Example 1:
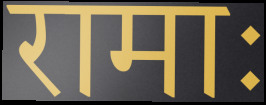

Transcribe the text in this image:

रामाः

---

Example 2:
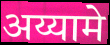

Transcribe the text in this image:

अय्यामे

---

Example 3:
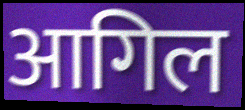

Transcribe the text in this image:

आगिल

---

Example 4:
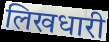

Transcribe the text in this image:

लिखधारी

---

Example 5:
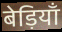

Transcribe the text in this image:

बेड़ियाँ